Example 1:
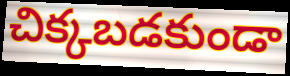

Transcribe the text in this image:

చిక్కబడకుండా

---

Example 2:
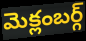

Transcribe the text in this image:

మెక్లంబర్గ్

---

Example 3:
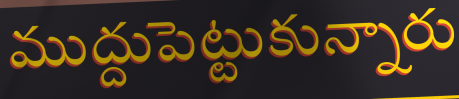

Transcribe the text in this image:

ముద్దుపెట్టుకున్నారు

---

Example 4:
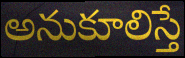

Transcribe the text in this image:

అనుకూలిస్తే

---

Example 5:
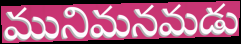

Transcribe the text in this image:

మునిమనమడు